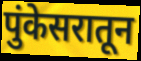
पुंकेसरातून